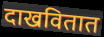
दाखवितात